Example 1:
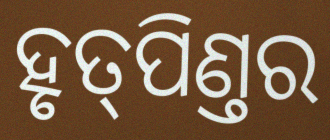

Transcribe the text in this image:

ହୃତ୍‌ପିଣ୍ତର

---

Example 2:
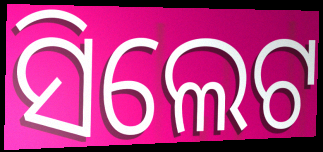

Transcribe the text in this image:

ସିଲେଟ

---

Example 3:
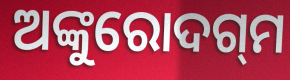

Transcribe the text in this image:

ଅଙ୍କୁରୋଦଗ୍‌ମ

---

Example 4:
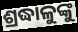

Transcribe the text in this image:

ଶ୍ରଦ୍ଧାଳୁଙ୍କୁ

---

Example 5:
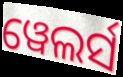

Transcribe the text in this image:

ୱେଲର୍ସ